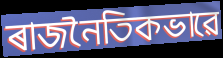
ৰাজনৈতিকভাৱে